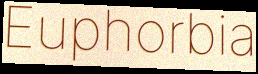
Euphorbia